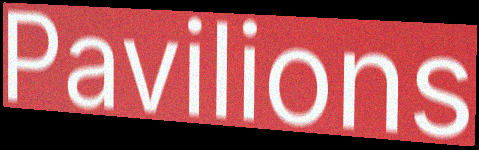
Pavilions